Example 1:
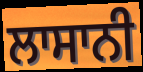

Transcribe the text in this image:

ਲਾਸਾਨੀ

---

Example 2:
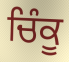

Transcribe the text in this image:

ਚਿੰਕੂ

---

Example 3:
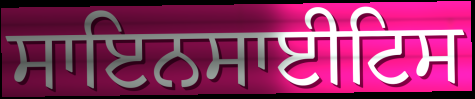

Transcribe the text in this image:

ਸਾਇਨਸਾਈਟਿਸ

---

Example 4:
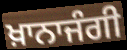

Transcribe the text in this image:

ਖ਼ਾਨਾਜੰਗੀ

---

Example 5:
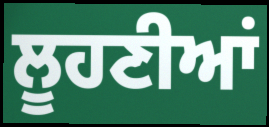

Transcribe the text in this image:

ਲੂਹਣੀਆਂ